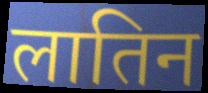
लातिन